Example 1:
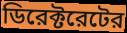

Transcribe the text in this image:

ডিরেক্টরেটের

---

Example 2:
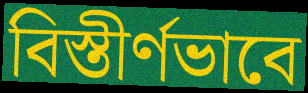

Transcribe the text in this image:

বিস্তীর্ণভাবে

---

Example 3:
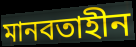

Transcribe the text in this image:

মানবতাহীন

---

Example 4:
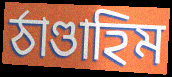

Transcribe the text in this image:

ঠাণ্ডাহিম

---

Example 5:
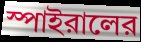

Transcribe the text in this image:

স্পাইরালের